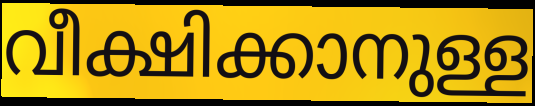
വീക്ഷിക്കാനുള്ള